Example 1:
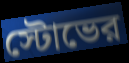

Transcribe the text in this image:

স্টোভের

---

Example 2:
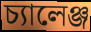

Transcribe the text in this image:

চ্যালেঞ্জ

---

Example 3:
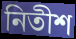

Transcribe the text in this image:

নিতীশ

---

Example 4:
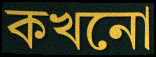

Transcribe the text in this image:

কখনো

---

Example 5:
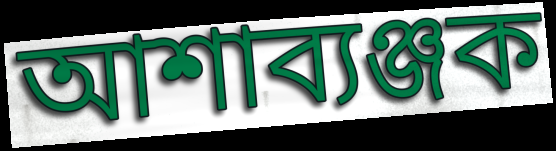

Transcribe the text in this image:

আশাব্যঞ্জক